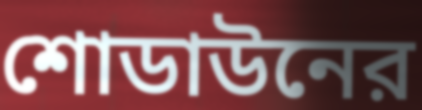
শোডাউনের